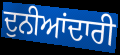
ਦੁਨੀਆਂਦਾਰੀ